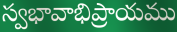
స్వభావాభిప్రాయము